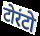
टोरंटो